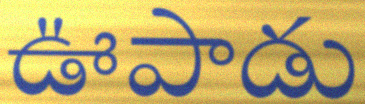
ఊపాడు